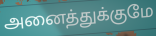
அனைத்துக்குமே